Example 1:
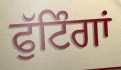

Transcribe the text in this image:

ਫੁੱਟਿੰਗਾਂ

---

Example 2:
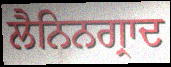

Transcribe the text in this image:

ਲੈਨਿਨਗ੍ਰਾਦ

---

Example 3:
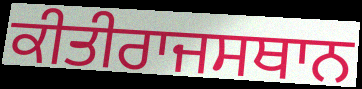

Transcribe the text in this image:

ਕੀਤੀਰਾਜਸਥਾਨ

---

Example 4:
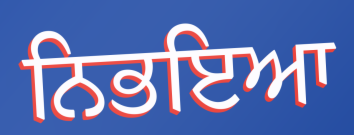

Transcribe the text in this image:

ਨਿਭਇਆ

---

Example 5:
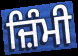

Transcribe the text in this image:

ਜ਼ਿੰਮੀ